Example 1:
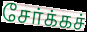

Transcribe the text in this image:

சேர்க்கச்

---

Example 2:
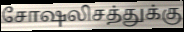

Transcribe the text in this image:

சோஷலிசத்துக்கு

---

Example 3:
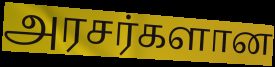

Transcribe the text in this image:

அரசர்களான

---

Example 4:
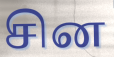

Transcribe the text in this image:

சின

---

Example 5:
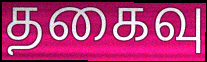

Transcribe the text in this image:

தகைவு